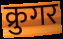
क्रुगर